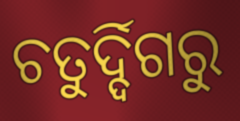
ଚତୁର୍ଦ୍ଦିଗରୁ